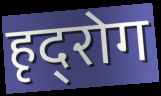
हृद्‍रोग